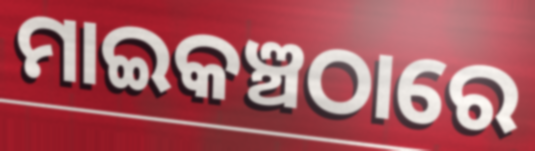
ମାଇକଞ୍ଚଠାରେ